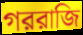
গররাজি